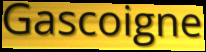
Gascoigne